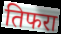
तिफरा